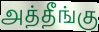
அத்தீங்கு